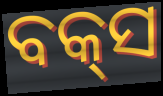
ବକ୍‍ସ